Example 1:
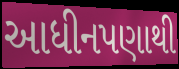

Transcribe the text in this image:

આધીનપણાથી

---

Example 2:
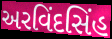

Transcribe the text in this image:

અરવિંદસિંહ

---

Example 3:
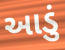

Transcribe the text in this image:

આડું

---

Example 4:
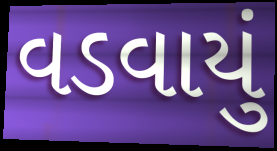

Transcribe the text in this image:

વડવાયું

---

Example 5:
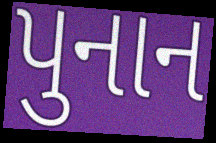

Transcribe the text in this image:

પુનાન